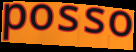
posso